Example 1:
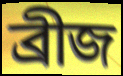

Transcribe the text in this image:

ব্ৰীজ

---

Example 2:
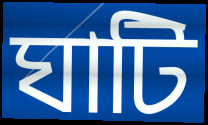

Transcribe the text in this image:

ঘাটি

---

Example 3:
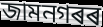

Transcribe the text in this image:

জামনগৰৰ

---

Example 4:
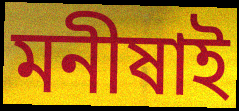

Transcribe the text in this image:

মনীষাই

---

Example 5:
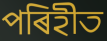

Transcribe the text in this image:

পৰিহীত